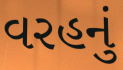
વરહનું